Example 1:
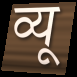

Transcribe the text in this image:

व्यू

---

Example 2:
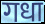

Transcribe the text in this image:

गधा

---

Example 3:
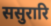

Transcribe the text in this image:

ससुरारि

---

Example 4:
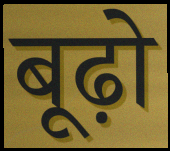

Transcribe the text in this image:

बूढ़ो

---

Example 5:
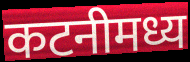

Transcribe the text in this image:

कटनीमध्य